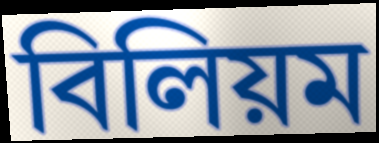
বিলিয়ম